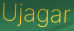
Ujagar